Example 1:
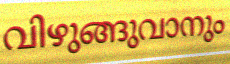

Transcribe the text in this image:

വിഴുങ്ങുവാനും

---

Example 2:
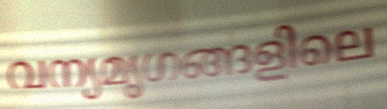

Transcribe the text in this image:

വന്യമൃഗങ്ങളിലെ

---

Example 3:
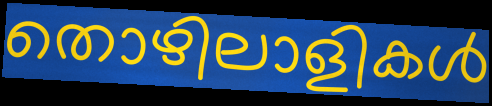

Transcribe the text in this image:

തൊഴിലാളികൾ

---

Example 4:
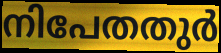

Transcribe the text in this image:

നിപേതതുർ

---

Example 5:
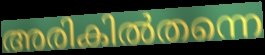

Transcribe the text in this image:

അരികിൽതന്നെ